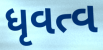
ધૃવત્વ